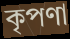
কৃপণা